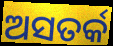
ଅସତର୍କ